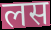
लस